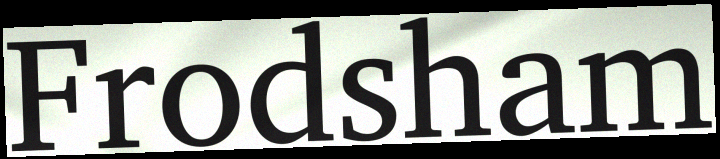
Frodsham